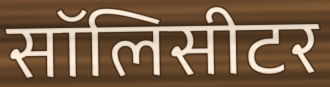
सॉलिसीटर